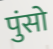
पुंसो